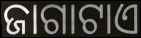
ଜାଗାଟାଏ